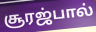
சூரஜ்பால்